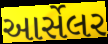
આર્સેલર